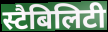
स्टैबिलिटी